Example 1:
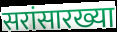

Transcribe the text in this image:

सरांसारख्या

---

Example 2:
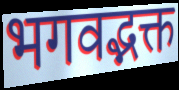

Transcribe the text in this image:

भगवद्भक्त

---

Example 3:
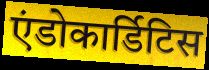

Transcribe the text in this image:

एंडोकार्डिटिस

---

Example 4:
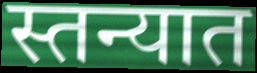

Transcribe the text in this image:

स्तन्यात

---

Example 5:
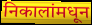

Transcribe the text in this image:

निकालांमधून